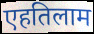
एहतिलाम